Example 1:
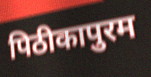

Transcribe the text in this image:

पिठीकापुरम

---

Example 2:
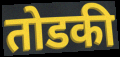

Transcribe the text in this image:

तोडकी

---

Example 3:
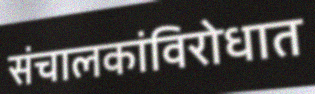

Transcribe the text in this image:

संचालकांविरोधात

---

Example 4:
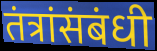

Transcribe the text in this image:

तंत्रांसंबंधी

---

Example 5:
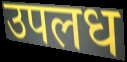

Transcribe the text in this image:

उपलध